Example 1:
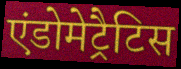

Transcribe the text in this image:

एंडोमेट्रैटिस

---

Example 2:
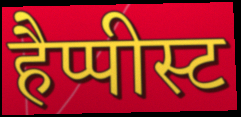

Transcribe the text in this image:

हैप्पीस्ट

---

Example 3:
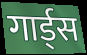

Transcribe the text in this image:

गार्ड्स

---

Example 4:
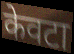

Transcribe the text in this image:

केवटा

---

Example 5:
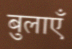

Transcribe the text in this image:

बुलाएँ